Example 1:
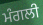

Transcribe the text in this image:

ਮੰਗਲੀ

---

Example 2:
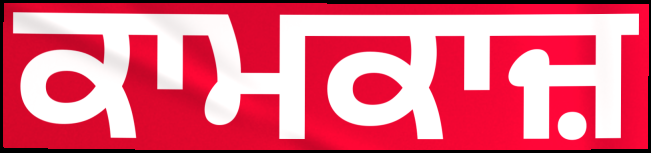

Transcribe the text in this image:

ਕਾਮਕਾਜ਼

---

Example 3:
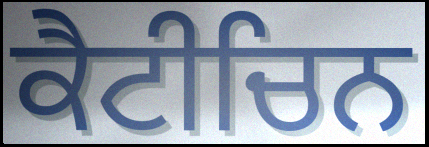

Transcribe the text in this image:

ਕੈਟੀਚਿਨ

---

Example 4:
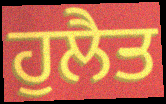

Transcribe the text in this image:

ਹੁਲੈਤ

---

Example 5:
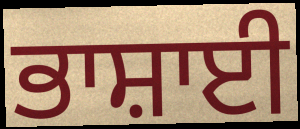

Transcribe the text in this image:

ਭਾਸ਼ਾਈ